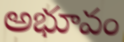
అభూవం